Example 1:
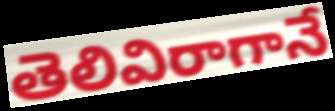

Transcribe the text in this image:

తెలివిరాగానే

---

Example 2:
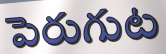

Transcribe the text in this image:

పెరుగుట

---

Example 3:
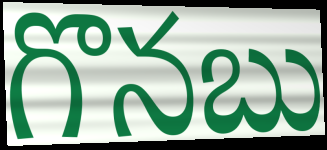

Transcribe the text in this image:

గొనబు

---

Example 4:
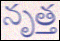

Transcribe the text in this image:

నృత్త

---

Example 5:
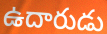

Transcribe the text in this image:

ఉదారుడు